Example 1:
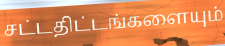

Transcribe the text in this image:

சட்டதிட்டங்களையும்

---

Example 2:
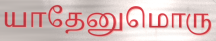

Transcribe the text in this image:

யாதேனுமொரு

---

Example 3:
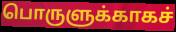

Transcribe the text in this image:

பொருளுக்காகச்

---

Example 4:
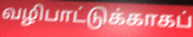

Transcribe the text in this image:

வழிபாட்டுக்காகப்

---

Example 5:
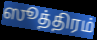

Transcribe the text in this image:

ஸூத்திரம்